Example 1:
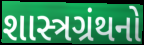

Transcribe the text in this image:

શાસ્ત્રગ્રંથનો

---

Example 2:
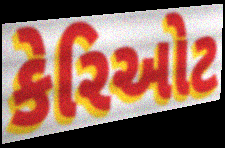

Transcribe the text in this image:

કેરિઓટ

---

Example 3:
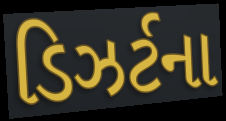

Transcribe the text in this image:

ડિઝર્ટના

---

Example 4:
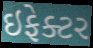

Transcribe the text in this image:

ઇફેક્ટર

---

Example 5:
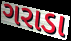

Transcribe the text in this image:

ગરાડા